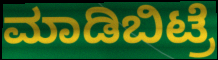
ಮಾಡಿಬಿಟ್ರೆ